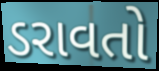
ડરાવતો